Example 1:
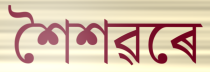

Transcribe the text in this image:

শৈশৱৰে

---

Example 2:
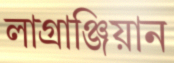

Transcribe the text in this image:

লাগ্ৰাঞ্জিয়ান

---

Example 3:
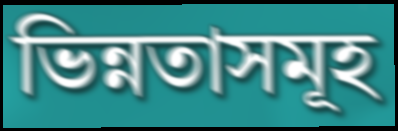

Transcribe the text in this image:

ভিন্নতাসমূহ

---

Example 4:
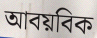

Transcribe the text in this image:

আবয়বিক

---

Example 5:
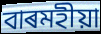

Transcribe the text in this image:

বাৰমহীয়া